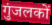
गुंजलकों